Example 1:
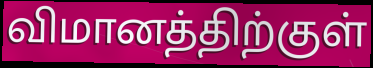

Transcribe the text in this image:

விமானத்திற்குள்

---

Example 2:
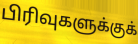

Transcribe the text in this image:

பிரிவுகளுக்குக்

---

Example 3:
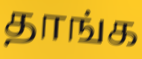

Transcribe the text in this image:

தாங்க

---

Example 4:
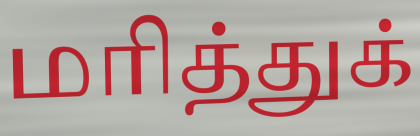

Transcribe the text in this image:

மரித்துக்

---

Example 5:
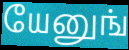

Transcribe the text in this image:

யேனுங்